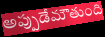
అప్పుడేమౌతుంది